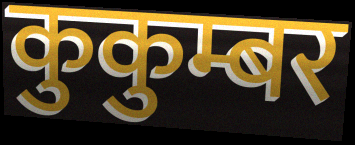
कुकुम्बर